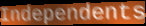
Independents